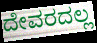
ದೇವರದಲ್ಲ